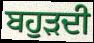
ਬਹੁੜਦੀ